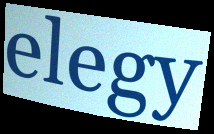
elegy